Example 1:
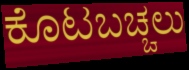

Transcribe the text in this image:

ಕೊಟಬಚ್ಚಲು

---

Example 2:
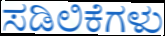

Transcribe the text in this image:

ಸಡಿಲಿಕೆಗಳು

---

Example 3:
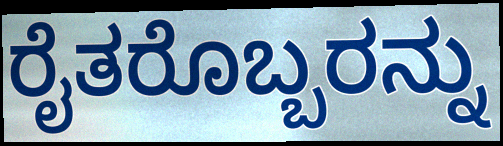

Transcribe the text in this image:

ರೈತರೊಬ್ಬರನ್ನು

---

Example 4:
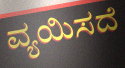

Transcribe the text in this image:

ವ್ಯಯಿಸದೆ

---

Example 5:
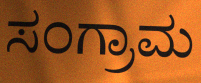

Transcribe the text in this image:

ಸಂಗ್ರಾಮ